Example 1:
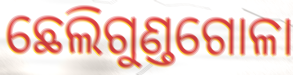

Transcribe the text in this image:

ଛେଲିଗୁଣ୍ଡଗୋଳା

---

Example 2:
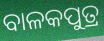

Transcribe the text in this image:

ବାଳକପୁତ୍ର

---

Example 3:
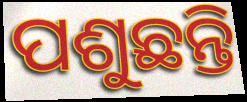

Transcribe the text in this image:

ପଶୁଛନ୍ତି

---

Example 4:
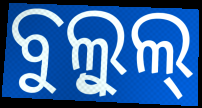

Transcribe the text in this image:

ବୁଲ୍ବୁଲ୍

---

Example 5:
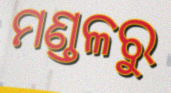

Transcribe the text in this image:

ମଣ୍ଡଳରୁ